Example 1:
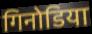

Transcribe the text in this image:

गिनोडिया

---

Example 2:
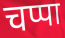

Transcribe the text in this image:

चप्पा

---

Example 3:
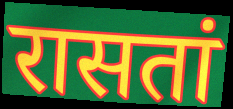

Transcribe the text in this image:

रासतां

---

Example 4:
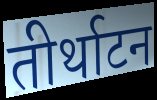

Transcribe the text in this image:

तीर्थाटन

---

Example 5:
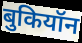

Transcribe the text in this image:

बुकियॉन